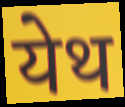
येथ